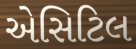
એસિટિલ